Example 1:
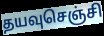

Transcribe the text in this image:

தயவுசெஞ்சி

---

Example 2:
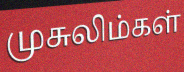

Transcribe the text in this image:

முசுலிம்கள்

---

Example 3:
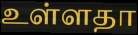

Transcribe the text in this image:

உள்ளதா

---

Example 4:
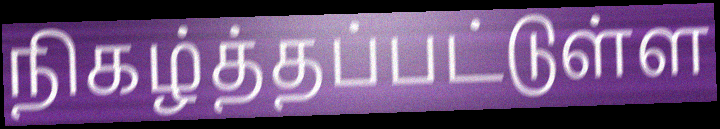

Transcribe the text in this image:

நிகழ்த்தப்பட்டுள்ள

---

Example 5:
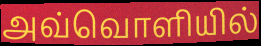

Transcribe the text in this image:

அவ்வொளியில்